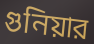
গুনিয়ার